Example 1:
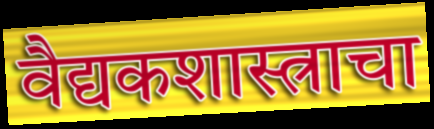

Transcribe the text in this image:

वैद्यकशास्त्राचा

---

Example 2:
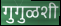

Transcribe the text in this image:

गुगुळशी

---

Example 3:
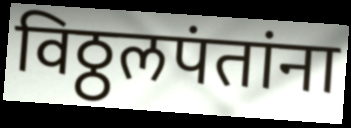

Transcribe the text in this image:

विठ्ठलपंतांना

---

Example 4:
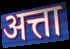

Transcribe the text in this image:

अत्ता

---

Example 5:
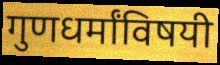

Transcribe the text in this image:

गुणधर्मांविषयी